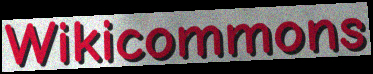
Wikicommons